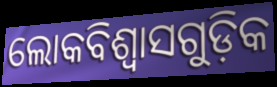
ଲୋକବିଶ୍ୱାସଗୁଡ଼ିକ